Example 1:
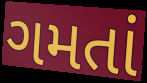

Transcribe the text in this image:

ગમતાં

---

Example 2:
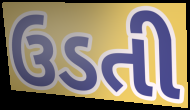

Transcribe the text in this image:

ઉડતી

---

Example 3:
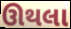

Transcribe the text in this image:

ઊથલા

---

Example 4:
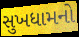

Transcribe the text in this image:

સુખધામનો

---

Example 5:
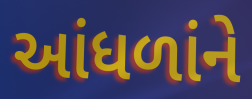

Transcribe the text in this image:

આંધળાંને